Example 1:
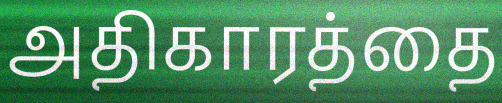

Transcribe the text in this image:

அதிகாரத்தை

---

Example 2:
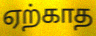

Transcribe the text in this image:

ஏற்காத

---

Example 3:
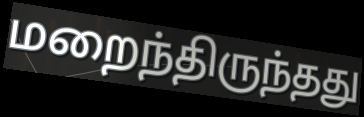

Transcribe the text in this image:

மறைந்திருந்தது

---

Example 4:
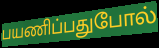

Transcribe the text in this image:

பயணிப்பதுபோல்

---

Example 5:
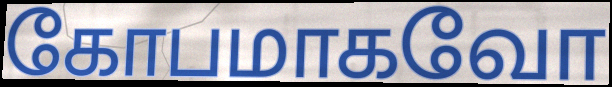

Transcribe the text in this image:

கோபமாகவோ